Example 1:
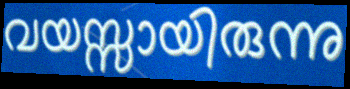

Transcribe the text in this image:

വയസ്സായിരുന്നു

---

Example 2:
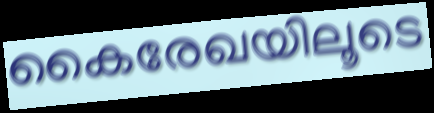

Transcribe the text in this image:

കൈരേഖയിലൂടെ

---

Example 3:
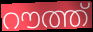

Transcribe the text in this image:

റൗത്ത്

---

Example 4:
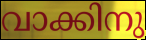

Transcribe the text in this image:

വാക്കിനു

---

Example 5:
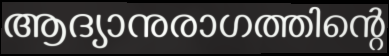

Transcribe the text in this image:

ആദ്യാനുരാഗത്തിന്റെ